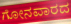
ಗೋನವಾರದ